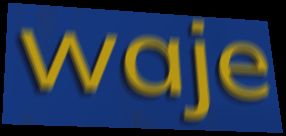
waje